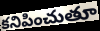
కనిపించుతూ